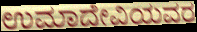
ಉಮಾದೇವಿಯವರ